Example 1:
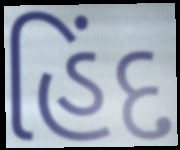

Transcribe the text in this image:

હિંદ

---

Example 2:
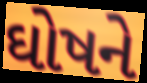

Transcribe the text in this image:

ઘોષને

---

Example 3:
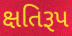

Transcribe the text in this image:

ક્ષતિરૂપ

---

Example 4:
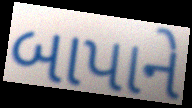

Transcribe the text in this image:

બાપાને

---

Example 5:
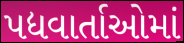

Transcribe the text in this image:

પદ્યવાર્તાઓમાં